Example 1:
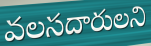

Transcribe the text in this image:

వలసదారులని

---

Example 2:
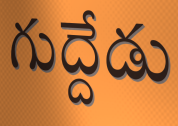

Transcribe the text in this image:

గుద్దేడు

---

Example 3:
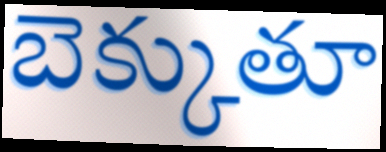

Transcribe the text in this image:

బెక్కుతూ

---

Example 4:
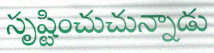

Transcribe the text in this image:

సృష్టించుచున్నాడు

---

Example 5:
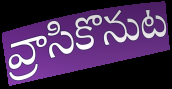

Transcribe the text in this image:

వ్రాసికొనుట